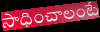
సాధించాలంటే